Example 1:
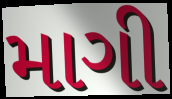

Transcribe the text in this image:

માગી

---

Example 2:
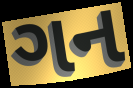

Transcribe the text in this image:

ગન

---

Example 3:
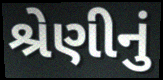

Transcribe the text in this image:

શ્રેણીનું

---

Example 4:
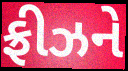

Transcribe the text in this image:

ફ્રીઝને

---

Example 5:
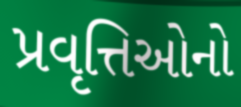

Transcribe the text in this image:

પ્રવૃત્તિઓનો